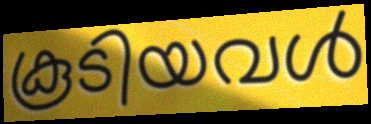
കൂടിയവൾ